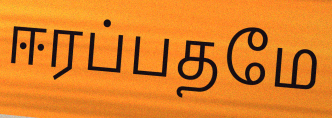
ஈரப்பதமே